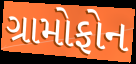
ગ્રામોફોન